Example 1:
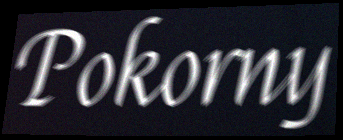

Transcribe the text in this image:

Pokorny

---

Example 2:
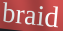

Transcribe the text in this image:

braid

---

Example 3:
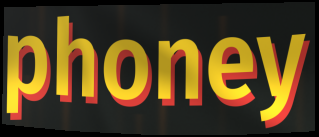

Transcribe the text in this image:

phoney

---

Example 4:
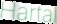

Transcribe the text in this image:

Hartal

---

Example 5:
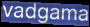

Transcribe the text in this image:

vadgama